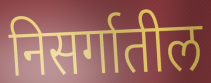
निसर्गातील